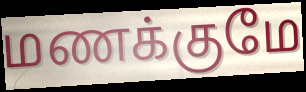
மணக்குமே